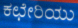
ಕಛೇರಿಯು